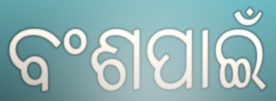
ବଂଶପାଇଁ